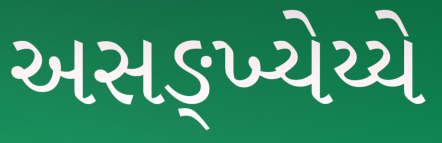
અસઙ્ખ્યેય્યે